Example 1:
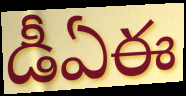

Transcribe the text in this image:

డీఏఈ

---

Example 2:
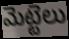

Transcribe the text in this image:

మెట్టెలు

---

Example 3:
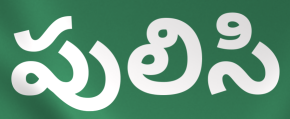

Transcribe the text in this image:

పులిసి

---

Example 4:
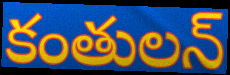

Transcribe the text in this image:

కంతులన్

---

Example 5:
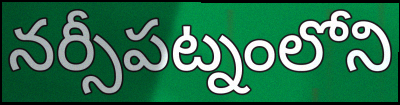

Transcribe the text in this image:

నర్సీపట్నంలోని